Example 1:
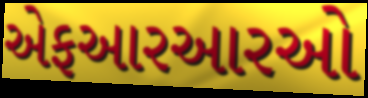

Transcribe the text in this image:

એફઆરઆરઓ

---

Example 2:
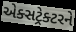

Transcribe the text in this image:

એક્સટ્રેક્ટરને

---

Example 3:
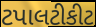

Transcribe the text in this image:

ટપાલટીકીટ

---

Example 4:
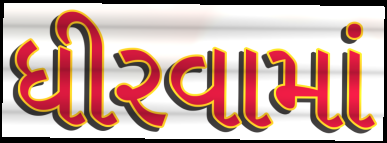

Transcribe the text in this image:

ધીરવામાં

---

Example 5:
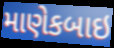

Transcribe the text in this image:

માણેકબાઇ